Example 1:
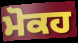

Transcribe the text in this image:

ਮੋਕਹ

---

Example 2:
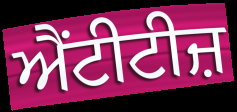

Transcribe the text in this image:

ਐਂਟੀਟੀਜ਼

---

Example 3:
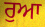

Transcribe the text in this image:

ਰੁਆ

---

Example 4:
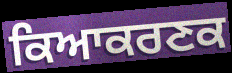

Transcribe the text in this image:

ਕਿਆਕਰਣਕ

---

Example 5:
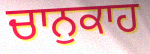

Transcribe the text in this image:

ਚਾਨੁਕਾਹ